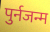
पुर्नजन्म